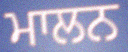
ਮਾਲਨ